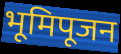
भूमिपूजन